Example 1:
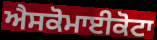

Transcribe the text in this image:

ਐਸਕੋਮਾਈਕੋਟਾ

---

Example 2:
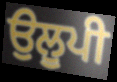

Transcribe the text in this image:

ਉਲੂਪੀ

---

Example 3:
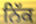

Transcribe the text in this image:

ਨਿੱਕ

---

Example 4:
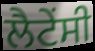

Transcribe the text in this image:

ਲੈਟੇਂਸੀ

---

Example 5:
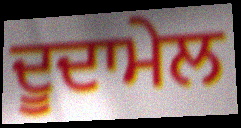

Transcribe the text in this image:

ਦੂਦਾਮੇਲ